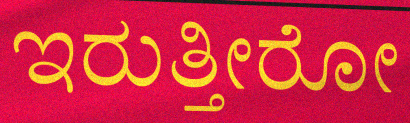
ಇರುತ್ತೀರೋ